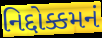
નિદ્દોક્કમનં